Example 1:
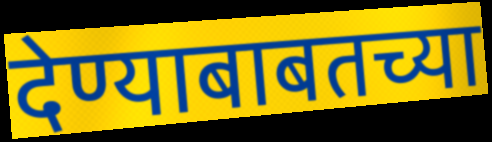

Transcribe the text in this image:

देण्याबाबतच्या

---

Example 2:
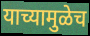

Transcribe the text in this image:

याच्यामुळेच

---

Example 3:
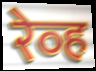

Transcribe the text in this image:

रेव्ह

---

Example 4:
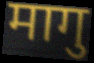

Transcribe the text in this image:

मागु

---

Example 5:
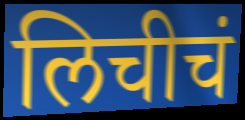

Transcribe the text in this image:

लिचीचं